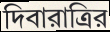
দিবারাত্রির